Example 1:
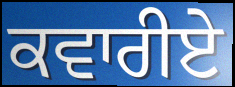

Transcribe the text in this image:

ਕਵਾਰੀਏ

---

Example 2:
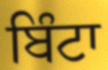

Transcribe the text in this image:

ਬਿੰਟਾ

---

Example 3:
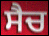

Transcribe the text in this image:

ਸੈਚ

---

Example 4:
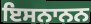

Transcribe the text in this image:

ਇਸਨਾਨਨ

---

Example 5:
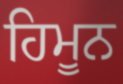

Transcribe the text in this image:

ਹਿਮੂਨ